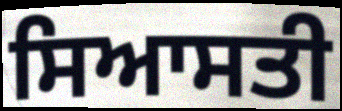
ਸਿਆਸਤੀ